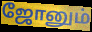
ஜோனும்